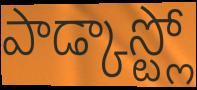
పాడ్కాస్ట్లో